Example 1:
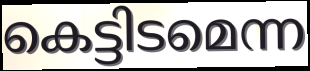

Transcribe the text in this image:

കെട്ടിടമെന്ന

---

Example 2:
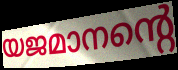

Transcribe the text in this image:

യജമാനന്റെ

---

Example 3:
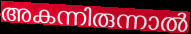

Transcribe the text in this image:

അകന്നിരുന്നാൽ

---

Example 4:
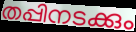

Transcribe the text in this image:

തപ്പിനടക്കും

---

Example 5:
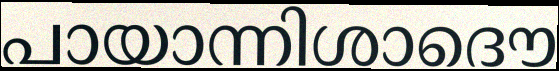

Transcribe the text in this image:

പായാന്നിശാദൌ